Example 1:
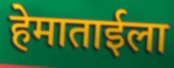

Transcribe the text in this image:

हेमाताईला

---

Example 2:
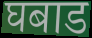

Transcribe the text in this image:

घबाड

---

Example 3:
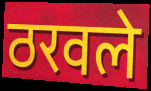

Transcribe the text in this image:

ठरवले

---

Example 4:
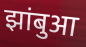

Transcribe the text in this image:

झांबुआ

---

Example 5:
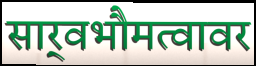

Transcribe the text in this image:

सार्वभौमत्वावर